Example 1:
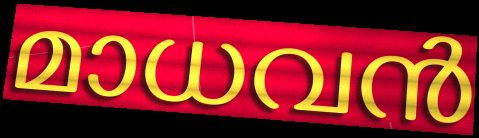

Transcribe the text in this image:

മാധവൻ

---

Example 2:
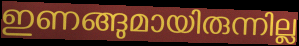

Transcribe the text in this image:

ഇണങ്ങുമായിരുന്നില്ല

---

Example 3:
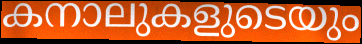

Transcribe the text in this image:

കനാലുകളുടെയും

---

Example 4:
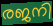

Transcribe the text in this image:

രജനി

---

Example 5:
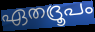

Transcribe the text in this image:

ഏതദ്രൂപം